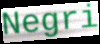
Negri